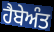
ਹੈਬੇਅੰਤ